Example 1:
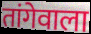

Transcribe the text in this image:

तांगेवाला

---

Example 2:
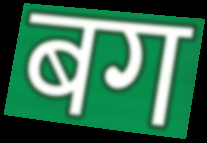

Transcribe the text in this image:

बग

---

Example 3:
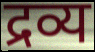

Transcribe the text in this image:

द्रव्य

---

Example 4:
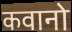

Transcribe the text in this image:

कवानो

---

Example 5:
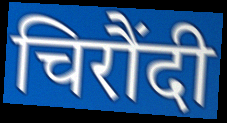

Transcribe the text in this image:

चिरौंदी